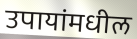
उपायांमधील